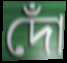
দোঁ